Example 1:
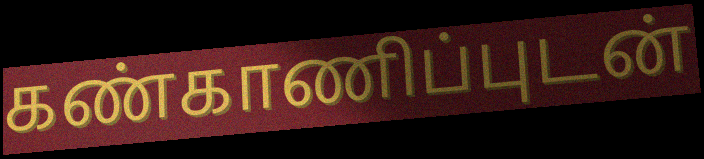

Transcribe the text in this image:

கண்காணிப்புடன்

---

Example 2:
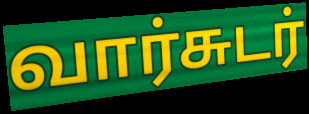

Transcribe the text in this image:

வார்சுடர்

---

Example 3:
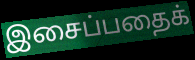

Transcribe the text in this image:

இசைப்பதைக்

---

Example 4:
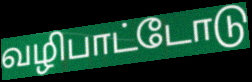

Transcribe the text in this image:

வழிபாட்டோடு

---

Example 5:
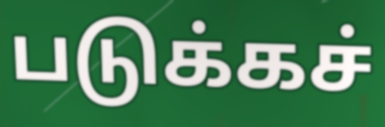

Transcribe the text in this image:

படுக்கச்